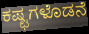
ಕಷ್ಟಗಳೊಡನೆ